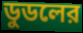
ডুডলের